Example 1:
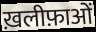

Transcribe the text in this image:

ख़लीफ़ाओं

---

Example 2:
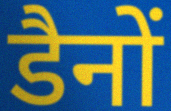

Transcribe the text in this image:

डैनों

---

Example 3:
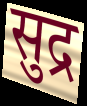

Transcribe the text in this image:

सुद्र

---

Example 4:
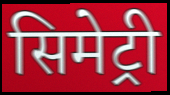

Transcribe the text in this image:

सिमेट्री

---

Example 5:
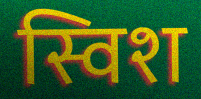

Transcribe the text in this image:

स्विश